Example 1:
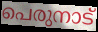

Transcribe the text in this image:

പെരുനാട്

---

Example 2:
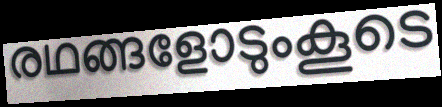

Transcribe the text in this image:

രഥങ്ങളോടുംകൂടെ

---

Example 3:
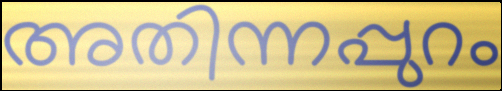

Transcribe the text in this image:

അതിന്നപ്പുറം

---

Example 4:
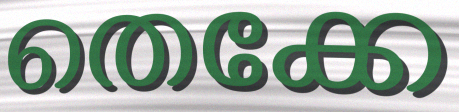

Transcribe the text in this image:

തെക്കേ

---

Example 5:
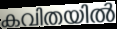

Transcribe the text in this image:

കവിതയിൽ